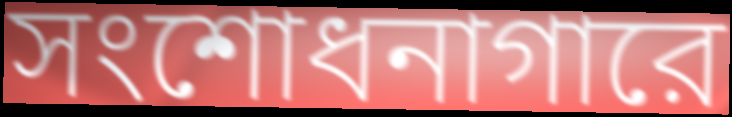
সংশোধনাগারে